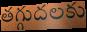
తగ్గుదలకు